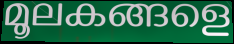
മൂലകങ്ങളെ